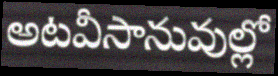
అటవీసానువుల్లో